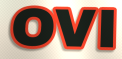
OVI